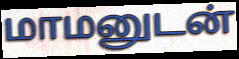
மாமனுடன்